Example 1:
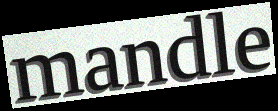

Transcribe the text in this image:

mandle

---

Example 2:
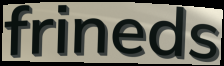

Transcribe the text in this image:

frineds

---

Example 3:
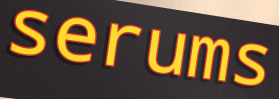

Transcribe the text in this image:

serums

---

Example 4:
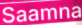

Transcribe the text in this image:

Saamna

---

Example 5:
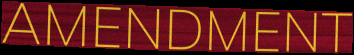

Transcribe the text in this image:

AMENDMENT